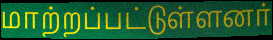
மாற்றப்பட்டுள்ளனர்